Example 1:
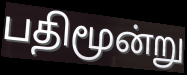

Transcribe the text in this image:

பதிமூன்று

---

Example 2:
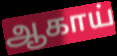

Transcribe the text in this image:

ஆகாய்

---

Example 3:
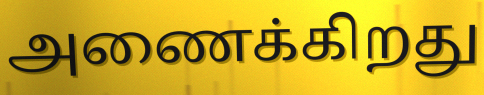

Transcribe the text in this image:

அணைக்கிறது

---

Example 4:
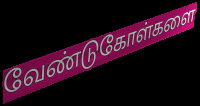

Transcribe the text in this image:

வேண்டுகோள்களை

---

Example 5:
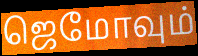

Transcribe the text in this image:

ஜெமோவும்